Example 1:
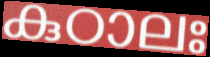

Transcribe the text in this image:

കുഠാലഃ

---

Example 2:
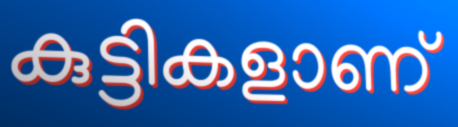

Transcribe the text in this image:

കുട്ടികളാണ്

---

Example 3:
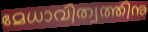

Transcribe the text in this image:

മേധാവിത്വത്തിനു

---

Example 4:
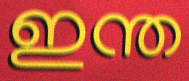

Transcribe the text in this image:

ഇന്ത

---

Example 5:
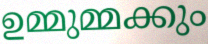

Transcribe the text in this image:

ഉമ്മുമ്മക്കും